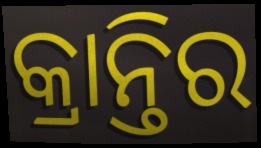
କ୍ରାନ୍ତିର